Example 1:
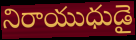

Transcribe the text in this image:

నిరాయుధుడై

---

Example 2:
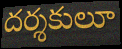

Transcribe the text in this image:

దర్శకులూ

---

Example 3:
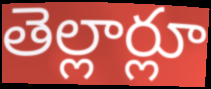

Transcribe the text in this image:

తెల్లార్లూ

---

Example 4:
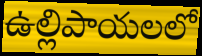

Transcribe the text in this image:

ఉల్లిపాయలలో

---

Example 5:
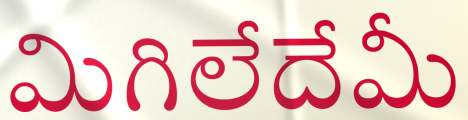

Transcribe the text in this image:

మిగిలేదేమీ